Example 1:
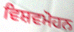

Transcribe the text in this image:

ਵਿਸ਼ਵਮੋਹਨ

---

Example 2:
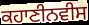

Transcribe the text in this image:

ਕਹਾਣੀਨਵੀਸ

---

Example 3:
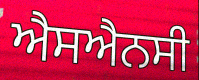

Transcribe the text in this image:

ਐਸਐਨਸੀ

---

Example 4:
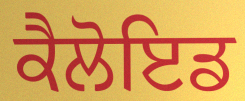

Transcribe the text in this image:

ਕੈਲੋਇਡ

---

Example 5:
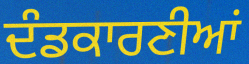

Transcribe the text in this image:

ਦੰਡਕਾਰਣੀਆਂ